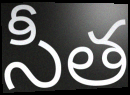
సీత